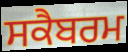
ਸਕੈਬਰਮ